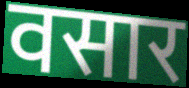
वसार